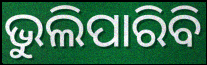
ଭୁଲିପାରିବି